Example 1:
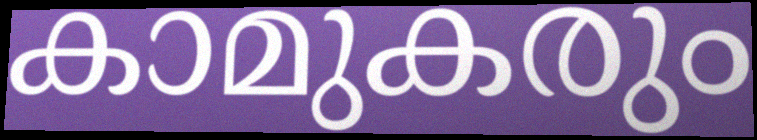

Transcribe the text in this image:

കാമുകരും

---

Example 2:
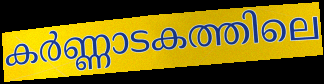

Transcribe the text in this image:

കർണ്ണാടകത്തിലെ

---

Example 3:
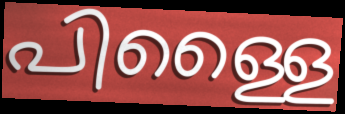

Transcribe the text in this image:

പിള്ളൈ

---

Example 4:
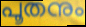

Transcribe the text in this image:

പൂതനും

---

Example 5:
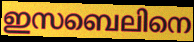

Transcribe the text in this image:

ഇസബെലിനെ